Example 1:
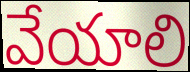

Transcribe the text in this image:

వేయాలి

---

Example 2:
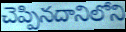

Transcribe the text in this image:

చెప్పినదానిలోని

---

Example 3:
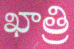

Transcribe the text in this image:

ఖాత్రి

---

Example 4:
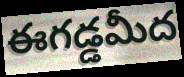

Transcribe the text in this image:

ఈగడ్డమీద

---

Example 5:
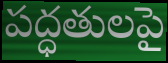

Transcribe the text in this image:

పద్ధతులపై